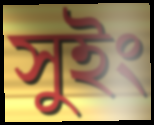
সুইং